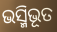
ଭସ୍ମିଭୂତ